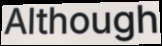
Although